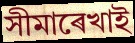
সীমাৰেখাই